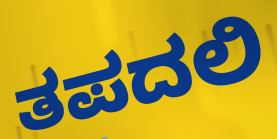
ತಪದಲಿ